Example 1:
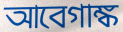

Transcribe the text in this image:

আবেগাঙ্ক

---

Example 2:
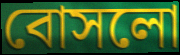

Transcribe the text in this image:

বোসলো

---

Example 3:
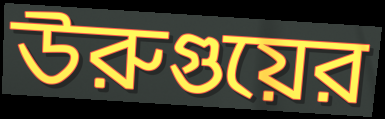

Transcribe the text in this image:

উরুগুয়ের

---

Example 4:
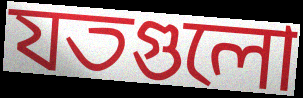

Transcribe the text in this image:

যতগুলো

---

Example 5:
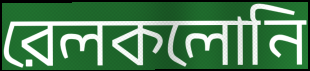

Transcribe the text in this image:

রেলকলোনি